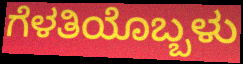
ಗೆಳತಿಯೊಬ್ಬಳು